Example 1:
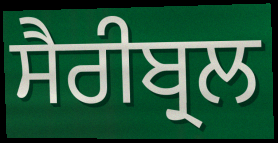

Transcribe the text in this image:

ਸੈਰੀਬ੍ਰਲ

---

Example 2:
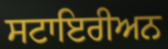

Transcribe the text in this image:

ਸਟਾਇਰੀਅਨ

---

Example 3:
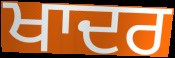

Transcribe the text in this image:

ਖਾਦਰ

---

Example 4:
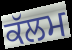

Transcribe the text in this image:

ਕੱਲਮ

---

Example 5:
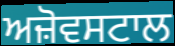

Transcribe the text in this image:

ਅਜ਼ੋਵਸਟਾਲ